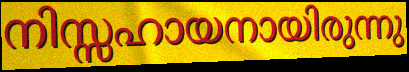
നിസ്സഹായനായിരുന്നു